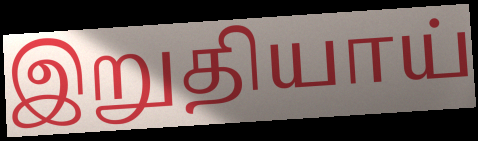
இறுதியாய்